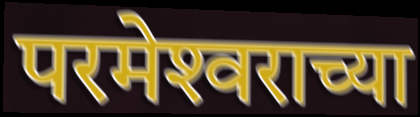
परमेश्‍वराच्या